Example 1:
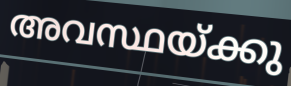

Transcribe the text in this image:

അവസ്ഥയ്ക്കു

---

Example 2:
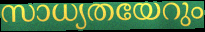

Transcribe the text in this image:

സാധ്യതയേറും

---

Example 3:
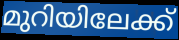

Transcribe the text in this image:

മുറിയിലേക്ക്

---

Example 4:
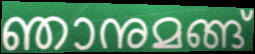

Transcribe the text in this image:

ഞാനുമങ്ങ്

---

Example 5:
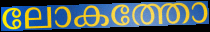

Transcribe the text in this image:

ലോകത്തോ